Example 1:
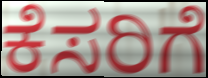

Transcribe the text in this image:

ಕೆಸರಿಗೆ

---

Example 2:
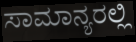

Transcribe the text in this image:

ಸಾಮಾನ್ಯರಲ್ಲಿ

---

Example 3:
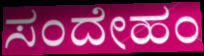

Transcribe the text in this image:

ಸಂದೇಹಂ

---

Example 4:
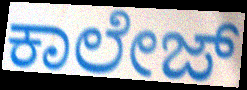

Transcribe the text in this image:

ಕಾಲೇಜ್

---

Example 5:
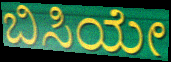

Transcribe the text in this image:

ಬಿಸಿಯೇ